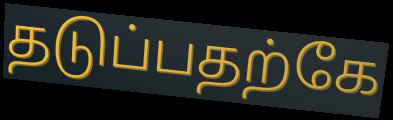
தடுப்பதற்கே